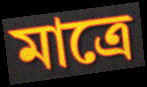
মাত্ৰে